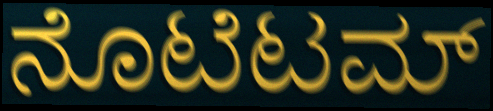
ನೊಟೆಟಮ್